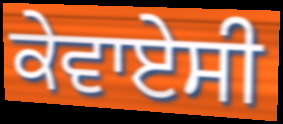
ਕੇਵਾਏਸੀ